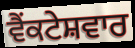
ਵੈਂਕਟੇਸ਼ਵਾਰ